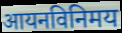
आयनविनिमय